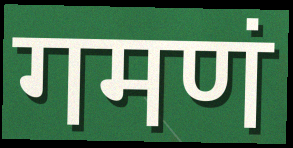
गमणं